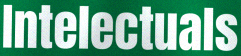
Intelectuals